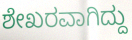
ಶೇಖರವಾಗಿದ್ದು